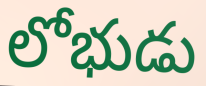
లోభుడు